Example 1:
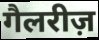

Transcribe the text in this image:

गैलरीज़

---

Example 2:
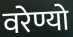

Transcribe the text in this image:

वरेण्यो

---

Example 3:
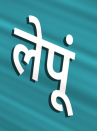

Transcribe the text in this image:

लेपूं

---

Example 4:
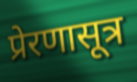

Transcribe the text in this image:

प्रेरणासूत्र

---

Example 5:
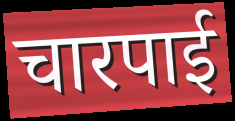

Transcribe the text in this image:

चारपाई